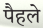
पैहले